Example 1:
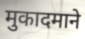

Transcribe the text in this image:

मुकादमाने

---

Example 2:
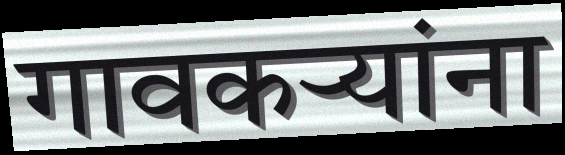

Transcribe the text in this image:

गावकऱ्यांना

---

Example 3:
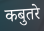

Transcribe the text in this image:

कबुतरे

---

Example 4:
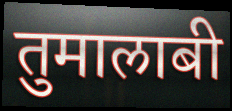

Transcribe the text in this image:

तुमालाबी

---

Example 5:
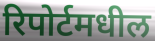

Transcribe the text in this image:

रिपोर्टमधील